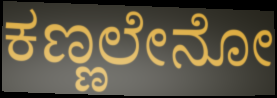
ಕಣ್ಣಲೇನೋ